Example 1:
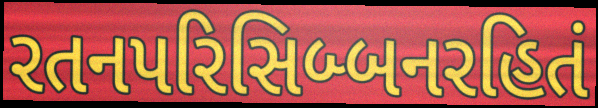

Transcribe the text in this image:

રતનપરિસિબ્બનરહિતં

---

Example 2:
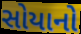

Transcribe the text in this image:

સોયાનો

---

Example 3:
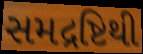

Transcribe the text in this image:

સમદ્રષ્ટિથી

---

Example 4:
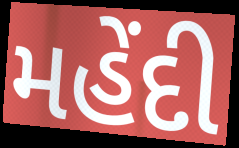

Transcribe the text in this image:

મહેંદી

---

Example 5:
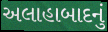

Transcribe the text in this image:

અલાહાબાદનું